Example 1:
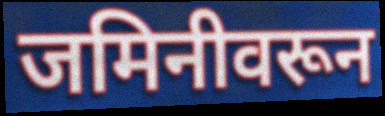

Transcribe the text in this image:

जमिनीवरून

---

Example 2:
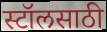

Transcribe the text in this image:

स्टॉलसाठी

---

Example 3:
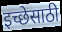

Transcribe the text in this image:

इच्छेसाठी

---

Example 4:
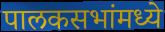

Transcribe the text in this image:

पालकसभांमध्ये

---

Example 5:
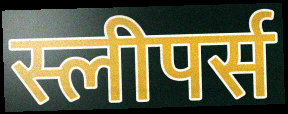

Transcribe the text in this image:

स्लीपर्स